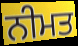
ਨੀਮਤ